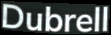
Dubrell